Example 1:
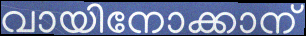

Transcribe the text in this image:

വായിനോക്കാന്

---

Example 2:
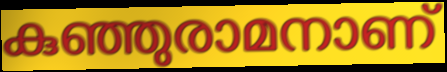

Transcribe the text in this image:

കുഞ്ഞുരാമനാണ്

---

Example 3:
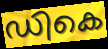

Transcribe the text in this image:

ഡികെ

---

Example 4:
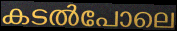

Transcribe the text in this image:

കടൽപോലെ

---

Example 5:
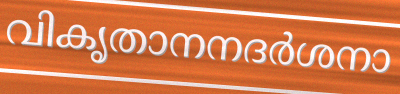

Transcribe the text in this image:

വികൃതാനനദർശനാ